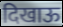
दिखाऊ